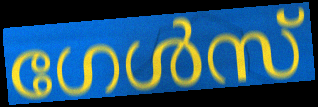
ഗേൾസ്